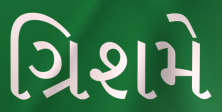
ગ્રિશમે